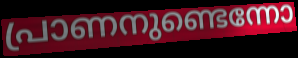
പ്രാണനുണ്ടെന്നോ